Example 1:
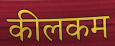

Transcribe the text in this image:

कीलकम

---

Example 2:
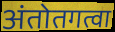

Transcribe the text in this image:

अंतोतगत्वा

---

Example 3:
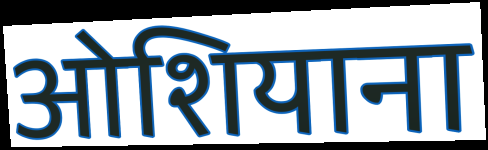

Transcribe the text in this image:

ओशियाना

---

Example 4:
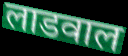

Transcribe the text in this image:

लाडवाल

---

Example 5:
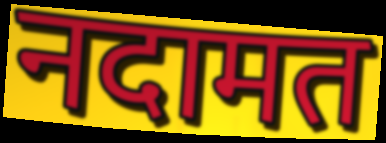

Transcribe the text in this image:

नदामत